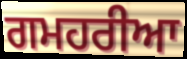
ਗਮਹਰੀਆ